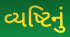
વ્યષ્ટિનું